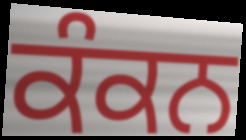
ਕੰਕਨ